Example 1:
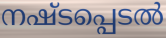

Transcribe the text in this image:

നഷ്ടപ്പെടൽ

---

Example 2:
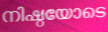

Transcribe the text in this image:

നിഷ്ഠയോടെ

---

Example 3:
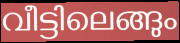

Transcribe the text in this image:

വീട്ടിലെങ്ങും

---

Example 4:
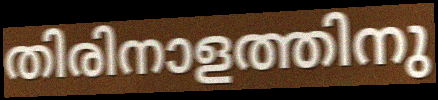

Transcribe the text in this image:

തിരിനാളത്തിനു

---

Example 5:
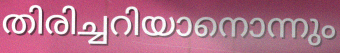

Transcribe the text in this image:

തിരിച്ചറിയാനൊന്നും